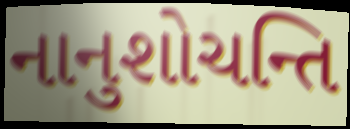
નાનુશોચન્તિ